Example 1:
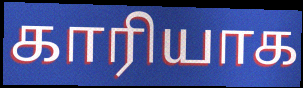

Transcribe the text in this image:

காரியாக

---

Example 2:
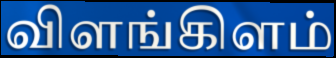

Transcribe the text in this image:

விளங்கிளம்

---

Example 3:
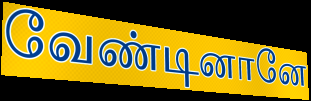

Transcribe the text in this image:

வேண்டினானே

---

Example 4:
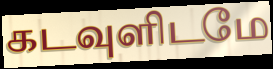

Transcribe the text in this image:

கடவுளிடமே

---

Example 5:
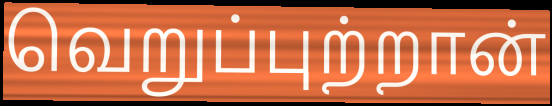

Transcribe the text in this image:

வெறுப்புற்றான்